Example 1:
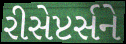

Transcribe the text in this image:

રીસેપ્ટર્સને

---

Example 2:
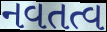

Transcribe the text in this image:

નવતત્વ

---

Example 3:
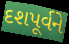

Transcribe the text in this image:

દશપૂર્વને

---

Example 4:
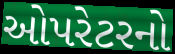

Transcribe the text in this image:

ઓપરેટરનો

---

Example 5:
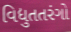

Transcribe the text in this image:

વિદ્યુતતરંગો